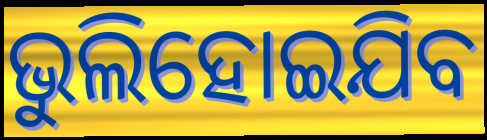
ଭୁଲିହୋଇଯିବ